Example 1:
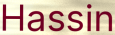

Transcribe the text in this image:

Hassin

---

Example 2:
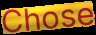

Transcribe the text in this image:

Chose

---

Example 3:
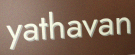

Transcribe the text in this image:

yathavan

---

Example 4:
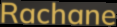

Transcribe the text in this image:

Rachane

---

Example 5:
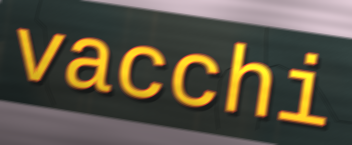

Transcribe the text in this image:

vacchi